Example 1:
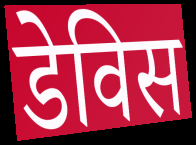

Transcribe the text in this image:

डेविस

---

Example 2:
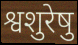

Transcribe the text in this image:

श्वशुरेषु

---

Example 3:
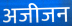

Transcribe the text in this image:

अजीजन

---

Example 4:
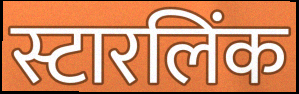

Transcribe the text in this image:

स्टारलिंक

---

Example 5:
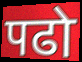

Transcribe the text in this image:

पढो